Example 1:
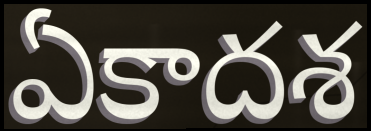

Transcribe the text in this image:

ఏకాదశ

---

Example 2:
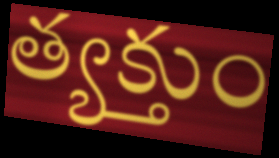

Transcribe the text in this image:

త్యక్తుం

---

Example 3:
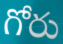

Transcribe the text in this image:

గోరు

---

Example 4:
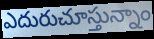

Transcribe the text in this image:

ఎదురుచూస్తున్నాం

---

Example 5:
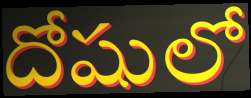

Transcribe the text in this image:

దోషులో